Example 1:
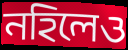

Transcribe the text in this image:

নহিলেও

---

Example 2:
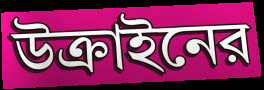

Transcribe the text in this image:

উক্রাইনের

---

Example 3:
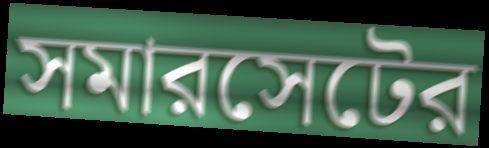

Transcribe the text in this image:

সমারসেটের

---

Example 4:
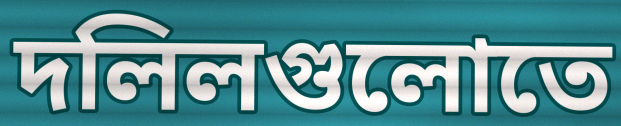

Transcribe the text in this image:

দলিলগুলোতে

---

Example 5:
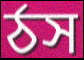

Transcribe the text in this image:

ঠস